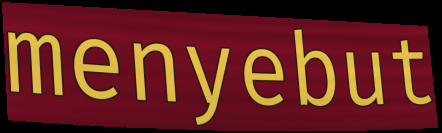
menyebut